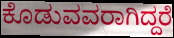
ಕೊಡುವವರಾಗಿದ್ದರೆ